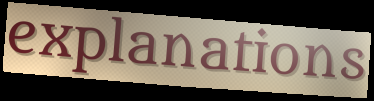
explanations